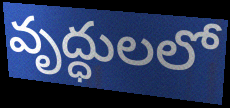
వృద్ధులలో